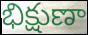
భిక్షుణా